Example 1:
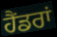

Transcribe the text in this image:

ਹੈਂਡਰਾਂ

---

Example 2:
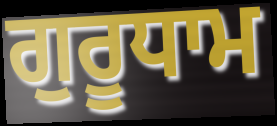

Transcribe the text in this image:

ਗੁਰੂਧਾਮ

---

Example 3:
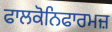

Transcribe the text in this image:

ਫਾਲਕੋਨਿਫਾਰਮਜ਼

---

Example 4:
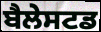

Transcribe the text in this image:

ਬੈਲੇਸਟਡ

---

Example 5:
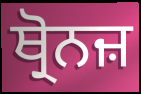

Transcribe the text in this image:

ਥ੍ਰੋਨਜ਼